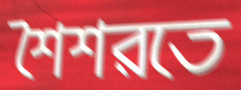
শৈশৱতে